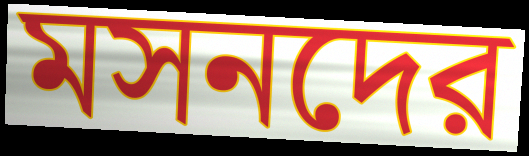
মসনদের